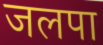
जलपा